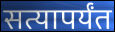
सत्यापर्यंत